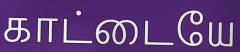
காட்டையே